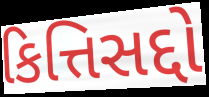
કિત્તિસદ્દો